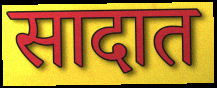
सादात